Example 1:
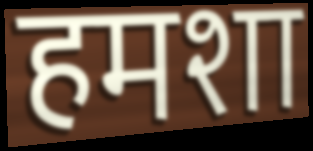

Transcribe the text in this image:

हमशा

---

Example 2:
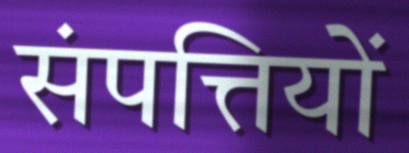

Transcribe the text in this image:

संपत्तियों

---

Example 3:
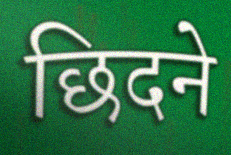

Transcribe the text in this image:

छिदने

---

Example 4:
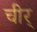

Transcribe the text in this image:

चीर्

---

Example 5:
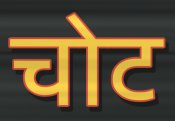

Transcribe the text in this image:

चोट